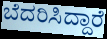
ಬೆದರಿಸಿದ್ದಾರೆ